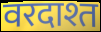
वरदाश्त